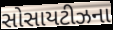
સોસાયટીઝના